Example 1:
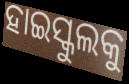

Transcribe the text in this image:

ହାଇସ୍କୁଲକୁ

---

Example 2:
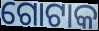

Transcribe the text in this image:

ଗୋଟାକ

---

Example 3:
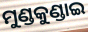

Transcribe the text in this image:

ମୁଣ୍ଡକୁଣ୍ଡାଇ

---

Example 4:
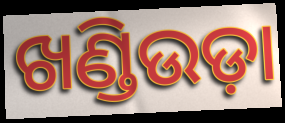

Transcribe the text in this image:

ଖଣ୍ଡିଉଡ଼ା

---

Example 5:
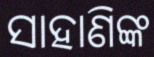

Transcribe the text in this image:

ସାହାଣିଙ୍କ